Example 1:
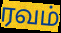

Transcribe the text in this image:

ரவம்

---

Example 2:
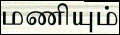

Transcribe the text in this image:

மணியும்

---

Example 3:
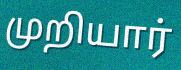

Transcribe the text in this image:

முறியார்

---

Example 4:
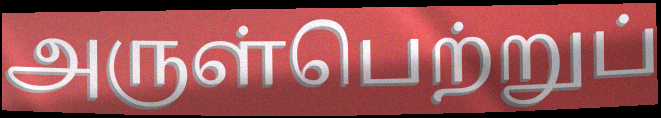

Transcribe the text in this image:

அருள்பெற்றுப்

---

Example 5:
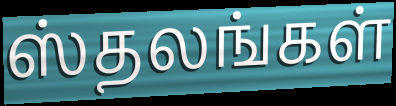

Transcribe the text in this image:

ஸ்தலங்கள்